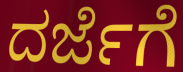
ದರ್ಜೆಗೆ